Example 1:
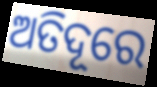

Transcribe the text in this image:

ଅତିଦୂରେ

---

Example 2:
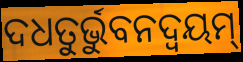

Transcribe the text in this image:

ଦଧତୁର୍ଭୁବନଦ୍ଵୟମ୍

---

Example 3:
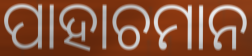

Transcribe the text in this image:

ପାହାଚମାନ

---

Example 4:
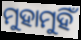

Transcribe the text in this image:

ମୁହାମୁହିଁ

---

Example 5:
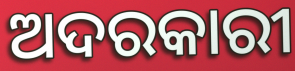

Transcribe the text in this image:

ଅଦରକାରୀ